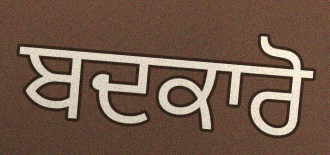
ਬਦਕਾਰੋ